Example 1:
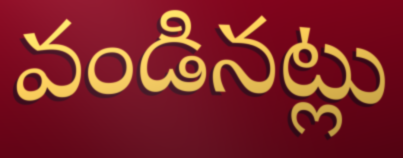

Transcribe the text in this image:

వండినట్లు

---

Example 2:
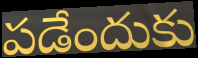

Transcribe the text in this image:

పడేందుకు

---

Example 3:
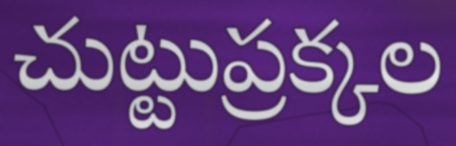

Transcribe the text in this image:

చుట్టుప్రక్కల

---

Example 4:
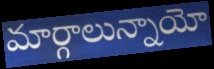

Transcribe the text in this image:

మార్గాలున్నాయో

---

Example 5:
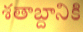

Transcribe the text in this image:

శతాబ్దానికి